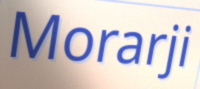
Morarji